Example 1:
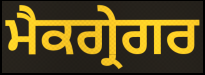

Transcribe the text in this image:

ਮੈਕਗ੍ਰੇਗਰ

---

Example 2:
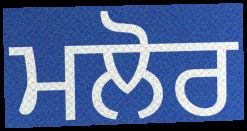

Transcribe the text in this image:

ਮਲੋਰ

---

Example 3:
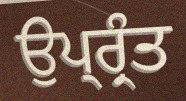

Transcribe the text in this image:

ਉਪ੍ਰ੍ਰੰਤ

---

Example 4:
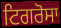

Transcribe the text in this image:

ਟਿਗਰੋਸਾ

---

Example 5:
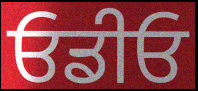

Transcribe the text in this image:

ਓਡੀਓ